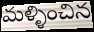
మళ్ళించిన